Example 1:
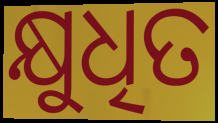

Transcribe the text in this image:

କ୍ଷୁଧିତ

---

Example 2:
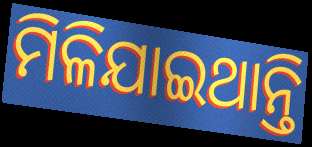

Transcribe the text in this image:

ମିଳିଯାଇଥାନ୍ତି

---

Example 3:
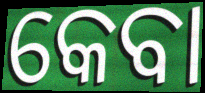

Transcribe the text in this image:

କେବା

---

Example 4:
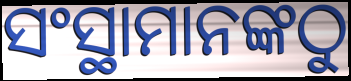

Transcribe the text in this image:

ସଂସ୍ଥାମାନଙ୍କଠୁ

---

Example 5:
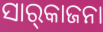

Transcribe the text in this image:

ସାର୍‌କାଜନା